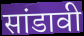
सांडावी